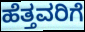
ಹೆತ್ತವರಿಗೆ